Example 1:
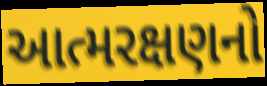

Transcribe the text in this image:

આત્મરક્ષણનો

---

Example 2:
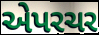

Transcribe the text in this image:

એપરચર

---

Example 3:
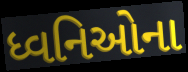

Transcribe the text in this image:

ધ્વનિઓના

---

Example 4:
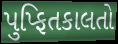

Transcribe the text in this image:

પુપ્ફિતકાલતો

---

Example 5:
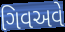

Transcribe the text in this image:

ગિવઅવે